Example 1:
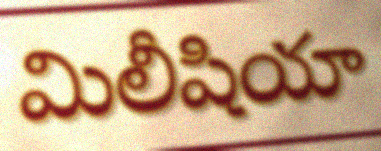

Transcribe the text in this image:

మిలీషియా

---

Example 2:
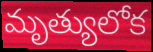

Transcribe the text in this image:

మృత్యులోక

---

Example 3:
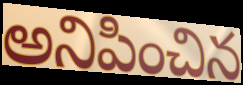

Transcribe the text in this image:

అనిపించిన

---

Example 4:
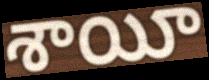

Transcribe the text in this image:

శాయీ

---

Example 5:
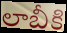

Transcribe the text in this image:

లాబీకి